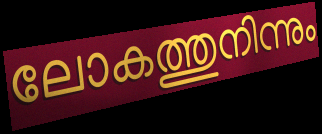
ലോകത്തുനിന്നും